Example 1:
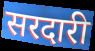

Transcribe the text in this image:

सरदारी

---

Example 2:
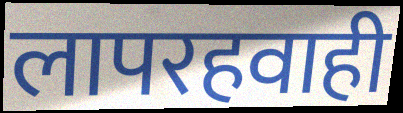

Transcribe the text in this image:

लापरहवाही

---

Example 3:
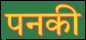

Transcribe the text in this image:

पनकी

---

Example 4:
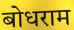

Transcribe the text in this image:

बोधराम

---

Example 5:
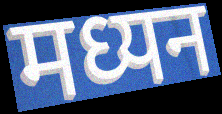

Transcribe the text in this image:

मध्यन